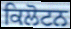
ਕਿਲੋਟਨ